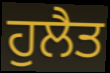
ਹੁਲੈਤ